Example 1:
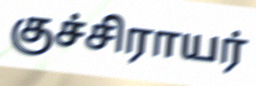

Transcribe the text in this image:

குச்சிராயர்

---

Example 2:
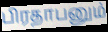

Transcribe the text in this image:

பிரதாபனும்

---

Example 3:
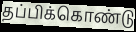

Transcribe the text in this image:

தப்பிக்கொண்டு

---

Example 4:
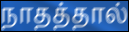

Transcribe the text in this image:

நாதத்தால்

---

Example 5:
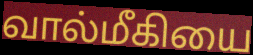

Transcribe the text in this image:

வால்மீகியை